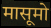
मासूमो